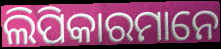
ଲିପିକାରମାନେ